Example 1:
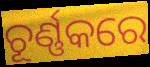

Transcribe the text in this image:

ଚୂର୍ଣ୍ଣକରେ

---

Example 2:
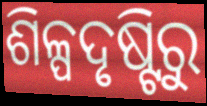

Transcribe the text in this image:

ଶିଳ୍ପଦୃଷ୍ଟିରୁ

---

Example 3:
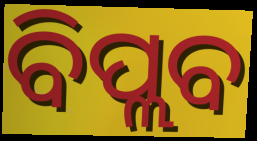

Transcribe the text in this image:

ବିପ୍ଲବ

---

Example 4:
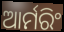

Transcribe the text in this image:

ଆର୍ମରିଂ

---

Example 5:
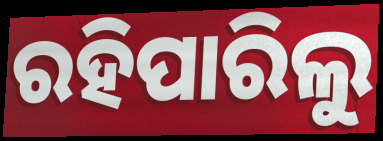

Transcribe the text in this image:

ରହିପାରିଲୁ